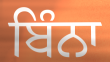
ਬਿੰਨਾ